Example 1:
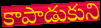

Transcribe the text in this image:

కాపాడుకుని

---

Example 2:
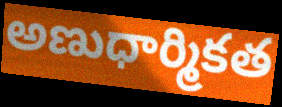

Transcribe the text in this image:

అణుధార్మికత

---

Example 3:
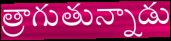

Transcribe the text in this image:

త్రాగుతున్నాడు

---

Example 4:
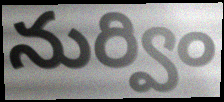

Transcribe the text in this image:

నుర్విం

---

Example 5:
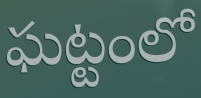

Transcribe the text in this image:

ఘట్టంలో